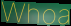
Whoa